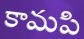
కామపి